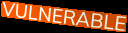
VULNERABLE